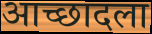
आच्छादला